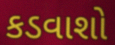
કડવાશો